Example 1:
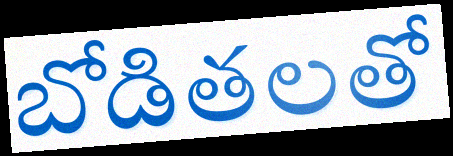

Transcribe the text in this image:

బోడితలతో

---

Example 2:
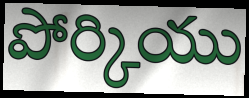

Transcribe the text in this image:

పోర్కియు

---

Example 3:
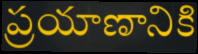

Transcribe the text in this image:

ప్రయాణానికి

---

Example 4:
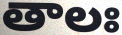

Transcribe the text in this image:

తాలః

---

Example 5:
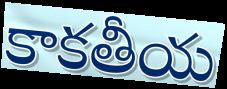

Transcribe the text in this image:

కాకతీయ